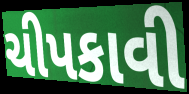
ચીપકાવી